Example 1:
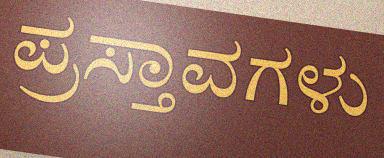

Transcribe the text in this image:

ಪ್ರಸ್ತಾವಗಳು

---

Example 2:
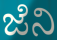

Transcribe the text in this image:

ಜೆನಿ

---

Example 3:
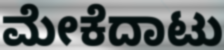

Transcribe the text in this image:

ಮೇಕೆದಾಟು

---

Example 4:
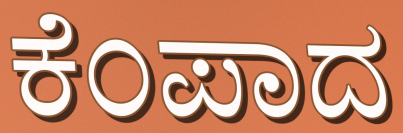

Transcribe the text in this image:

ಕೆಂಪಾದ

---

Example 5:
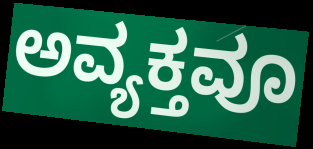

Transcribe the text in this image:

ಅವ್ಯಕ್ತವೂ